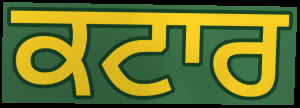
ਕਟਾਰ